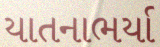
યાતનાભર્યા